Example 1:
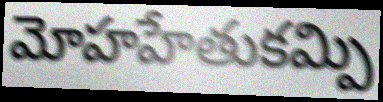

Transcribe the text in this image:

మోహహేతుకమ్పి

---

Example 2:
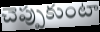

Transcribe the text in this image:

చెప్పుకుంటా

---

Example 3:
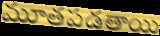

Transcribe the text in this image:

మూతపడతాయి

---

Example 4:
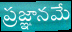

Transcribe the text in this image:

ప్రజ్ఞానమే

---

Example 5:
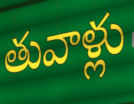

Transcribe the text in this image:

తువాళ్లు